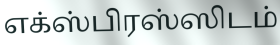
எக்ஸ்பிரஸ்ஸிடம்